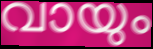
വായും